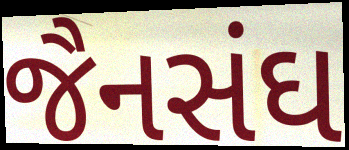
જૈનસંઘ